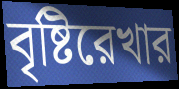
বৃষ্টিরেখার